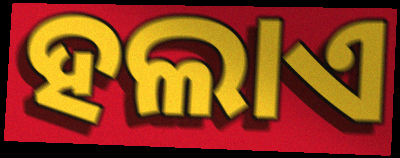
ହଲାଏ